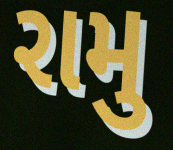
રામુ